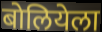
बोलियेला